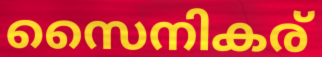
സൈനികര്